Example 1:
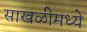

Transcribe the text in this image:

साखळीमध्ये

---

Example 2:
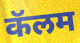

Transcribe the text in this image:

कॅलम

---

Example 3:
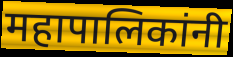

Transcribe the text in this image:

महापालिकांनी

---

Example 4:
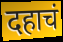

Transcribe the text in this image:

दहाचं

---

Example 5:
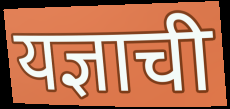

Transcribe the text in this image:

यज्ञाची